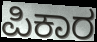
ಪಿಕಾರ